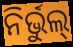
ନିର୍ଭୁଲ୍